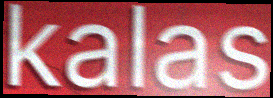
kalas